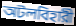
অটলবিহারী